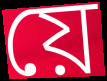
য়ে